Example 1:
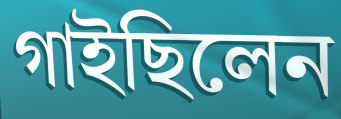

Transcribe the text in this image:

গাইছিলেন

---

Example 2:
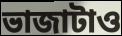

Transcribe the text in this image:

ভাজাটাও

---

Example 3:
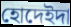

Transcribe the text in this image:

হোদেইদা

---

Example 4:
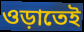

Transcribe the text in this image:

ওড়াতেই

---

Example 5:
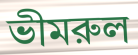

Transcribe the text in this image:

ভীমরুল